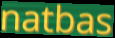
natbas